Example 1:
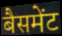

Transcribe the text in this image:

बैसमेंट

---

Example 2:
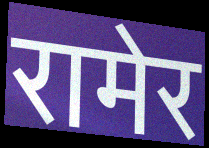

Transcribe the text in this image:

रामेर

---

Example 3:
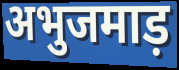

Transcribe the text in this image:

अभुजमाड़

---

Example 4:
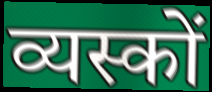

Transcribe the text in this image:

व्यस्कों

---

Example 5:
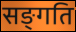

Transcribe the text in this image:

सङ्गति